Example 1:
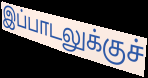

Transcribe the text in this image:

இப்பாடலுக்குச்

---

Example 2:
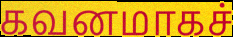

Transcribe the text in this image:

கவனமாகச்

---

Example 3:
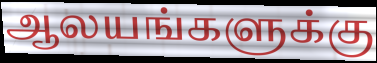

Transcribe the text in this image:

ஆலயங்களுக்கு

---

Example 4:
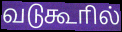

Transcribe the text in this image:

வடுகூரில்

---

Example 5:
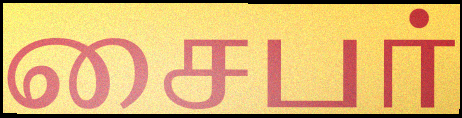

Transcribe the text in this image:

சைபர்